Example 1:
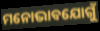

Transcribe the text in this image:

ମନୋଭାବଯୋଗୁଁ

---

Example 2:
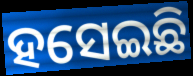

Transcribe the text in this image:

ହସେଇଛି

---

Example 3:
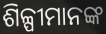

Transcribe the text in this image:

ଶିଳ୍ପୀମାନଙ୍କ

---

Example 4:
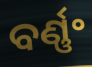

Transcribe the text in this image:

ବର୍ଣ୍ଣଂ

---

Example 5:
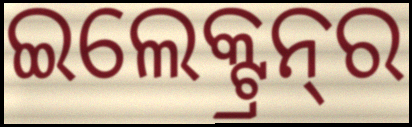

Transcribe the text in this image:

ଇଲେକ୍ଟ୍ରନ୍‌ର